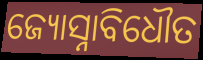
ଜ୍ୟୋସ୍ନାବିଧୌତ